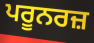
ਪਰੂਨਰਜ਼